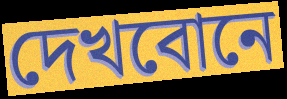
দেখবোনে